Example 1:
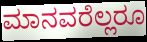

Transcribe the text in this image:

ಮಾನವರೆಲ್ಲರೂ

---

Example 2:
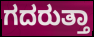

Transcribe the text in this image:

ಗದರುತ್ತಾ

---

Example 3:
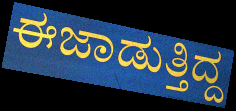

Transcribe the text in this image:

ಈಜಾಡುತ್ತಿದ್ದ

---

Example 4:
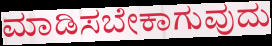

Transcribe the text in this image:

ಮಾಡಿಸಬೇಕಾಗುವುದು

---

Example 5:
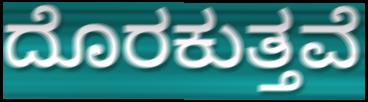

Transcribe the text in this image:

ದೊರಕುತ್ತವೆ